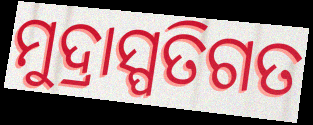
ମୁଦ୍ରାସ୍ପତିଗତ